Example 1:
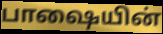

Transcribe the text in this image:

பாஷையின்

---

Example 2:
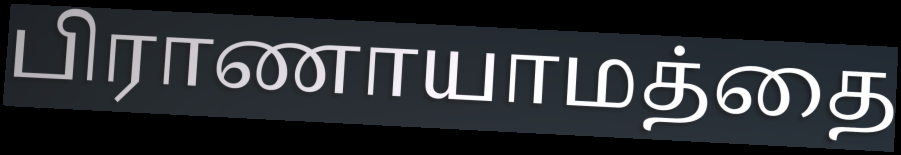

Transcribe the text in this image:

பிராணாயாமத்தை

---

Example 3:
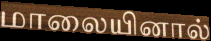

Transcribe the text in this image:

மாலையினால்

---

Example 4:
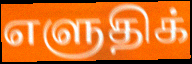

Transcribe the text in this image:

எளுதிக்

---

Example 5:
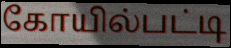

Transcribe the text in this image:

கோயில்பட்டி